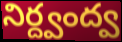
నిర్ద్వంద్వ